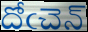
దోఁచెన్